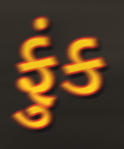
ફુંક